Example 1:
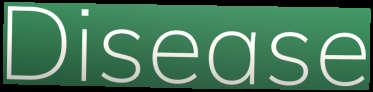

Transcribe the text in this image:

Disease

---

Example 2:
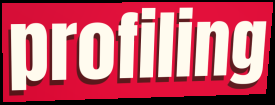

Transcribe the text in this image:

profiling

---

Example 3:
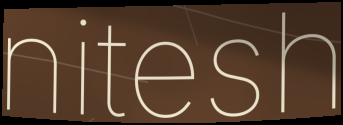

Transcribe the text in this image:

nitesh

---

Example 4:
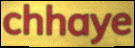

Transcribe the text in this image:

chhaye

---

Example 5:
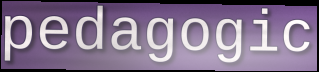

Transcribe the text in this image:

pedagogic